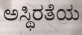
ಅಸ್ಥಿರತೆಯ